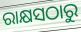
ରାକ୍ଷସଠାରୁ